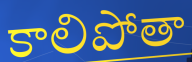
కాలిపోతా